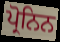
ਪ੍ਰੋਨਿਨ